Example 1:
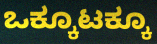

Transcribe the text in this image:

ಒಕ್ಕೂಟಕ್ಕೂ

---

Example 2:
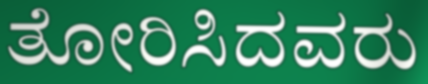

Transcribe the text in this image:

ತೋರಿಸಿದವರು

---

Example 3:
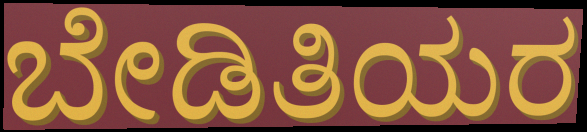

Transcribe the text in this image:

ಬೇಡಿತಿಯರ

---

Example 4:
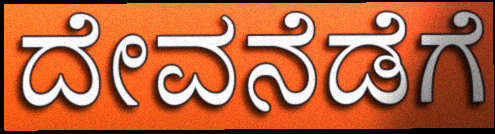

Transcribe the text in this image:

ದೇವನೆಡೆಗೆ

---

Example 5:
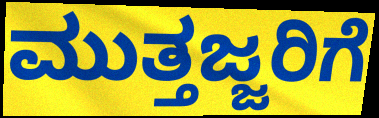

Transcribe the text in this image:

ಮುತ್ತಜ್ಜರಿಗೆ